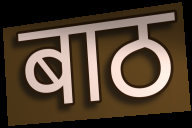
बाठ